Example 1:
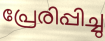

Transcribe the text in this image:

പ്രേരിപ്പിച്ചു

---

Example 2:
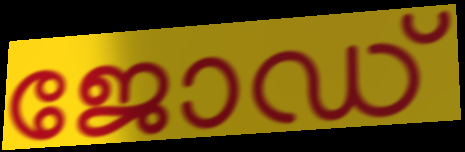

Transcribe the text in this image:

ജോഡ്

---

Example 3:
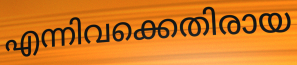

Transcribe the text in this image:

എന്നിവക്കെതിരായ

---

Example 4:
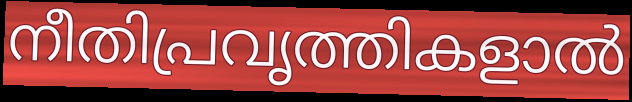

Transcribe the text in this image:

നീതിപ്രവൃത്തികളാൽ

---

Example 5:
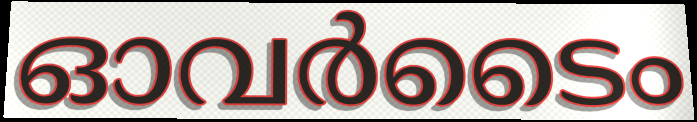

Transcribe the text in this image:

ഓവർടൈം